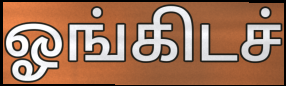
ஓங்கிடச்